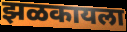
झळकायला